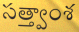
సత్త్వాంశ